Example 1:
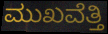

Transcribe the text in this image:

ಮುಖವೆತ್ತಿ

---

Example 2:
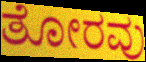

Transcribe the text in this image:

ತೋರವು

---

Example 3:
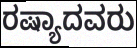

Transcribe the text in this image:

ರಷ್ಯಾದವರು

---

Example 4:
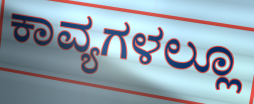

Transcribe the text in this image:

ಕಾವ್ಯಗಳಲ್ಲೂ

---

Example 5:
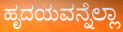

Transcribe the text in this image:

ಹೃದಯವನ್ನೆಲ್ಲಾ